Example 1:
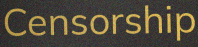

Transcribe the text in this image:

Censorship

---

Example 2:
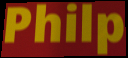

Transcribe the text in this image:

Philp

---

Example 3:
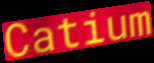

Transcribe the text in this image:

Catium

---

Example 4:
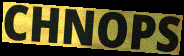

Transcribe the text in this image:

CHNOPS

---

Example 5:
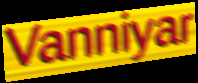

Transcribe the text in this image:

Vanniyar